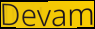
Devam